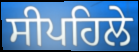
ਸੀਪਹਿਲੇ